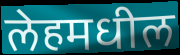
लेहमधील